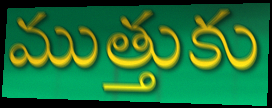
ముత్తుకు